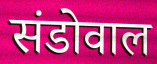
संडोवाल